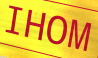
IHOM